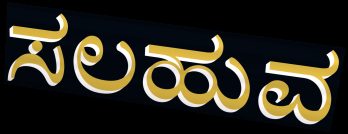
ಸಲಹುವ